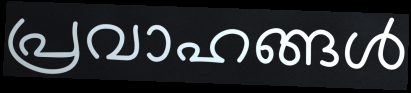
പ്രവാഹങ്ങൾ